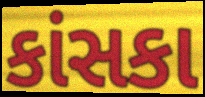
કાંસકા